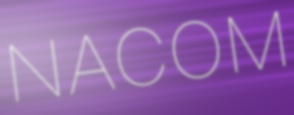
NACOM